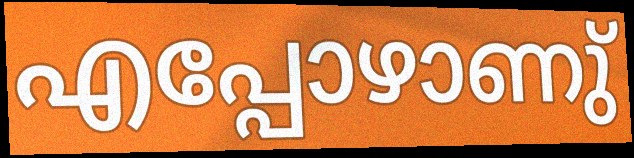
എപ്പോഴാണു്